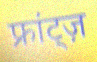
फ्रांट्ज़